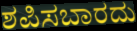
ಶಪಿಸಬಾರದು